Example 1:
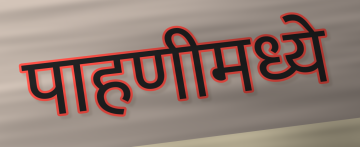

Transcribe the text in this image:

पाहणीमध्ये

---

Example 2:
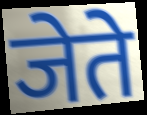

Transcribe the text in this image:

जेते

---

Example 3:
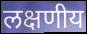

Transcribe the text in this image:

लक्षणीय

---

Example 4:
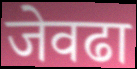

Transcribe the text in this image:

जेवढा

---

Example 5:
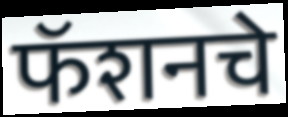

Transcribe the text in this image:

फॅशनचे